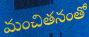
మంచితనంతో